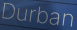
Durban